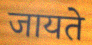
जायते